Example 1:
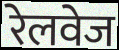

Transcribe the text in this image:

रेलवेज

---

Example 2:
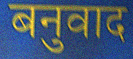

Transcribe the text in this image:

बनुवाद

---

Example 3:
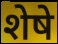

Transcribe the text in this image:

शेषे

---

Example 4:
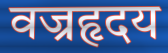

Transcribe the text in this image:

वज्रहृदय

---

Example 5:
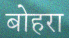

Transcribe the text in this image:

बोहरा